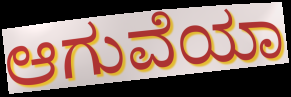
ಆಗುವೆಯಾ